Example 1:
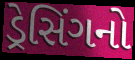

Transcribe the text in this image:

ડ્રેસિંગનો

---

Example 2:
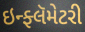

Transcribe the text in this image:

ઇન્ફ્લૅમેટરી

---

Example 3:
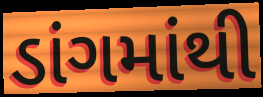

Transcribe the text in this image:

ડાંગમાંથી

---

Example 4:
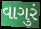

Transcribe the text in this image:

વાગુરં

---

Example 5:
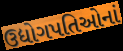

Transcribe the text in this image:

ઉદ્યોગપતિઓનાં